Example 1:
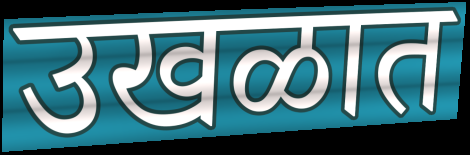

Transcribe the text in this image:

उखळात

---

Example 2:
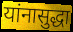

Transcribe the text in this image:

यांनासुद्धा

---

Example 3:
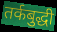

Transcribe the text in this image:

तर्कबुद्धी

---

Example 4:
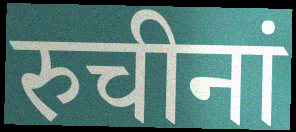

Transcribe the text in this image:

रुचीनां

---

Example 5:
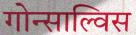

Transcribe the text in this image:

गोन्साल्विस